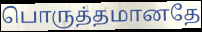
பொருத்தமானதே